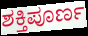
ಶಕ್ತಿಪೂರ್ಣ